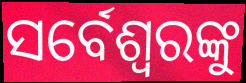
ସର୍ବେଶ୍ୱରଙ୍କୁ